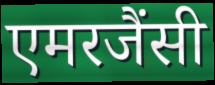
एमरजैंसी